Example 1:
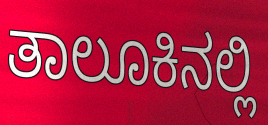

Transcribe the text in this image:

ತಾಲೂಕಿನಲ್ಲಿ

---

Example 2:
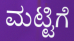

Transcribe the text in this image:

ಮಟ್ಟಿಗೆ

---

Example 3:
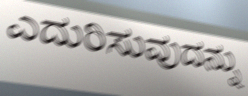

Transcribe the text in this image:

ಎದುರಿಸುವುದನ್ನು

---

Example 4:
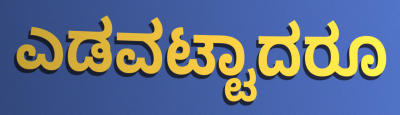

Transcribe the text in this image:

ಎಡವಟ್ಟಾದರೂ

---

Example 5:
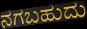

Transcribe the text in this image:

ನಗಬಹುದು